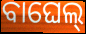
ବାଘେଲ୍